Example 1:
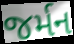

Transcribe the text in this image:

જર્મન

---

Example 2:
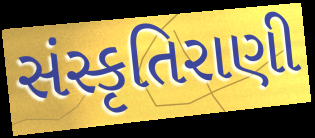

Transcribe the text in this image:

સંસ્કૃતિરાણી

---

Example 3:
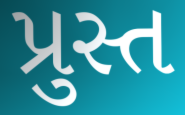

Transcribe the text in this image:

પ્રુસ્ત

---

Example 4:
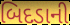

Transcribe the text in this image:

બિદડાની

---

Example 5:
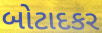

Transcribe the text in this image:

બોટાદકર